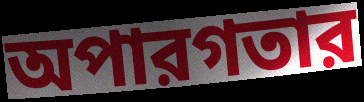
অপারগতার